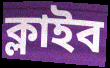
ক্লাইব